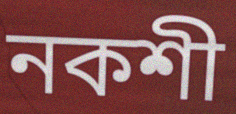
নকশী